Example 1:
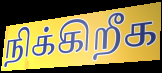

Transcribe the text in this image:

நிக்கிறீக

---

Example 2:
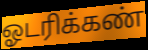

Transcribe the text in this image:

ஓடரிக்கண்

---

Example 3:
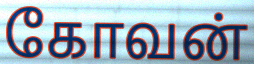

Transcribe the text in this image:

கோவன்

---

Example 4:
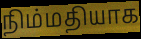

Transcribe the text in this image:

நிம்மதியாக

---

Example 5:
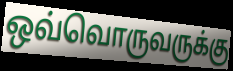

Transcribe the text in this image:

ஒவ்வொருவருக்கு